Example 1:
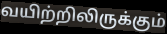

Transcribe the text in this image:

வயிற்றிலிருக்கும்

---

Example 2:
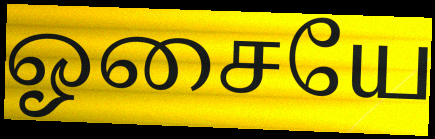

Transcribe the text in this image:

ஓசையே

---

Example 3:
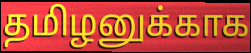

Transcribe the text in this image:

தமிழனுக்காக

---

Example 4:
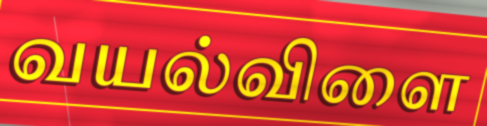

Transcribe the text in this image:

வயல்விளை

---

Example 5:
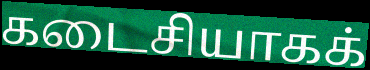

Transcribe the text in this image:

கடைசியாகக்